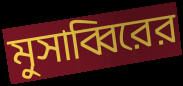
মুসাব্বিরের